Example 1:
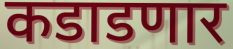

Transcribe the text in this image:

कडाडणार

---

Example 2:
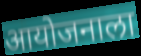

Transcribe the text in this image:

आयोजनाला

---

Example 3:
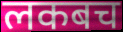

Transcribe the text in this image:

लकबच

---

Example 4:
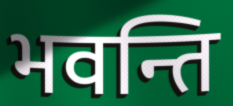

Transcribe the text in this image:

भवन्ति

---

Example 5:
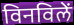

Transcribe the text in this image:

विनविलें